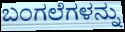
ಬಂಗಲೆಗಳನ್ನು